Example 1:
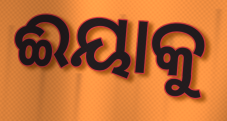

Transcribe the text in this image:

ଈୟାକୁ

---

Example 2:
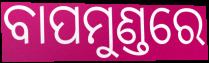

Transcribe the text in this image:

ବାପମୁଣ୍ଡରେ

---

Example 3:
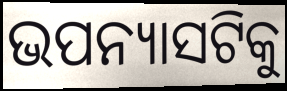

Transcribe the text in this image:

ଭପନ୍ୟାସଟିକୁ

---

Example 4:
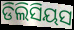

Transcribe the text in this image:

ଡିଲିସିୟସ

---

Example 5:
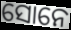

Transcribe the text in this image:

ସୋନେ